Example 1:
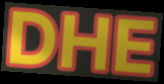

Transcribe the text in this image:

DHE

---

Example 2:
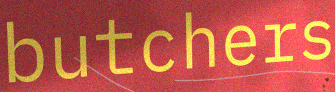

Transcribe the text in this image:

butchers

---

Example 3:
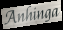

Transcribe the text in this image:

Anhinga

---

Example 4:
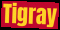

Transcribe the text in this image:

Tigray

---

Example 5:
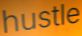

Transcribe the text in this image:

hustle